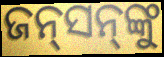
ଜନ୍‍ସନ୍‍ଙ୍କୁ